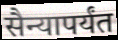
सैन्यापर्यंत